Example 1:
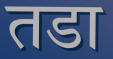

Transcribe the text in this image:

तडा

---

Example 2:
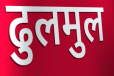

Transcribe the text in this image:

ढुलमुल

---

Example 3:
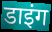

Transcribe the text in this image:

डाइंग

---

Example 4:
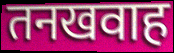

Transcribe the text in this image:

तनखवाह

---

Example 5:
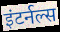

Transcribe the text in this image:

इंटर्नल्स